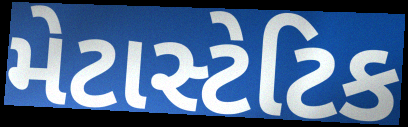
મેટાસ્ટેટિક